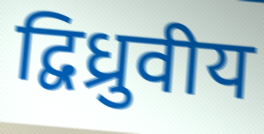
द्विध्रुवीय